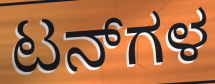
ಟನ್‌ಗಳ